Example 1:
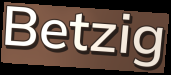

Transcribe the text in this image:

Betzig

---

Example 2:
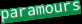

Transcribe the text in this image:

paramours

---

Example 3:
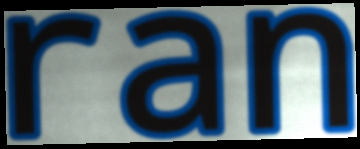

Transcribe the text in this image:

ran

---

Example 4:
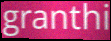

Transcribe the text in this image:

granthi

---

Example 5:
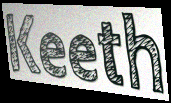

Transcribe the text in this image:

Keeth